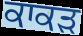
ਕਾਕੜ